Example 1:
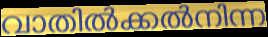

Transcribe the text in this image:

വാതിൽക്കൽനിന്ന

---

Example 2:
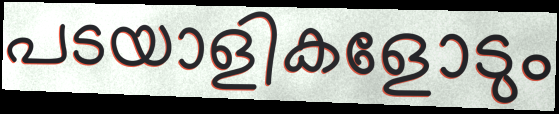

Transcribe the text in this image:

പടയാളികളോടും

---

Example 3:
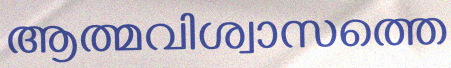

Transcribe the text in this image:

ആത്മവിശ്വാസത്തെ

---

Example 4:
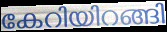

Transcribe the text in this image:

കേറിയിറങ്ങി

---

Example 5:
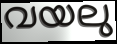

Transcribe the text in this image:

വയലു